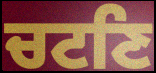
ਚਟਣਿ